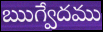
ఋగ్వేదము